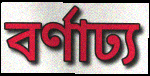
বর্ণাঢ্য